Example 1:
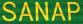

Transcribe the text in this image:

SANAP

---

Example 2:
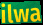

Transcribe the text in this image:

ilwa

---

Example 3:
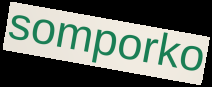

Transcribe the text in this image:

somporko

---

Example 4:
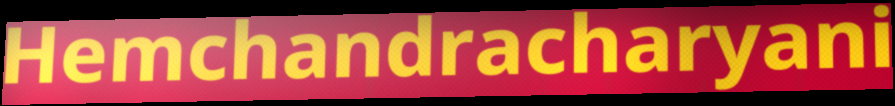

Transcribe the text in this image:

Hemchandracharyani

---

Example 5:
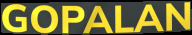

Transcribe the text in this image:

GOPALAN